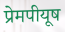
प्रेमपीयूष